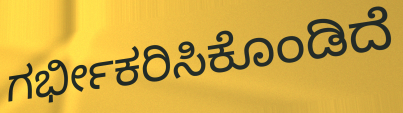
ಗರ್ಭೀಕರಿಸಿಕೊಂಡಿದೆ